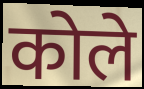
कोले